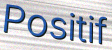
Positif